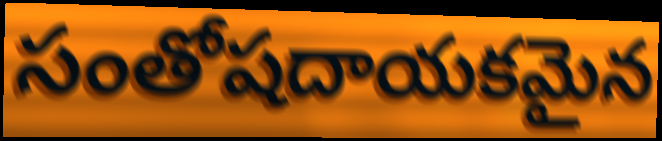
సంతోషదాయకమైన